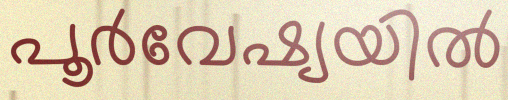
പൂർവേഷ്യയിൽ